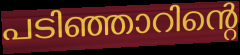
പടിഞ്ഞാറിന്റെ